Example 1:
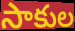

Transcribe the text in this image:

సాకుల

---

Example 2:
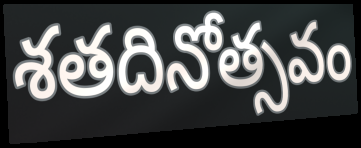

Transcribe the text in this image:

శతదినోత్సవం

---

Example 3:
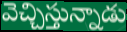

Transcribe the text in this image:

వెచ్చిస్తున్నాడు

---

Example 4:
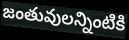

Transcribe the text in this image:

జంతువులన్నింటికి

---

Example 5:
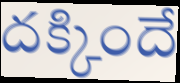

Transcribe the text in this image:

దక్కిందే